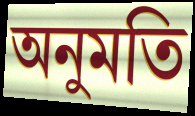
অনুমতি